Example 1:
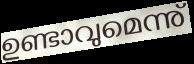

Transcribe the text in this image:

ഉണ്ടാവുമെന്നു്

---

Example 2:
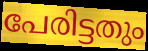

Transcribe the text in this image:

പേരിട്ടതും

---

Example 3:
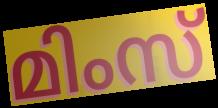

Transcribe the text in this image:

മിംസ്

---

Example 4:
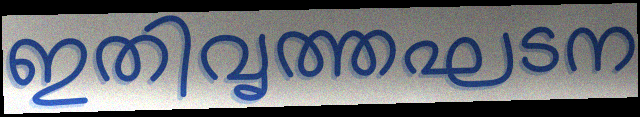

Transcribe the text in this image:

ഇതിവൃത്തഘടന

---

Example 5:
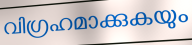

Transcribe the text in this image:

വിഗ്രഹമാക്കുകയും